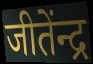
जीतेंन्द्र